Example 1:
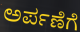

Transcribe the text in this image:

ಅರ್ಪಣೆಗೆ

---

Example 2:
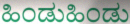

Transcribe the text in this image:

ಹಿಂಡುಹಿಂಡು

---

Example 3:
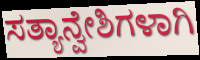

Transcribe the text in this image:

ಸತ್ಯಾನ್ವೇಶಿಗಳಾಗಿ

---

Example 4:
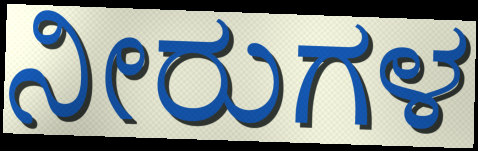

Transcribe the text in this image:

ನೀರುಗಳ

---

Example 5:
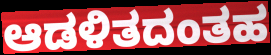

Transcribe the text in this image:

ಆಡಳಿತದಂತಹ